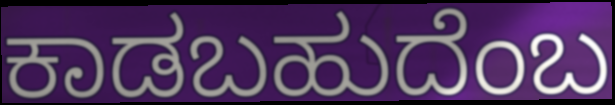
ಕಾಡಬಹುದೆಂಬ